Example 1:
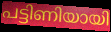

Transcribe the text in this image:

പട്ടിണിയായി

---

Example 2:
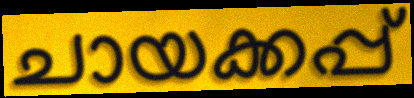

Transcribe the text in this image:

ചായക്കപ്പ്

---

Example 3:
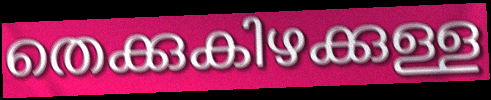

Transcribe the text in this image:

തെക്കുകിഴക്കുള്ള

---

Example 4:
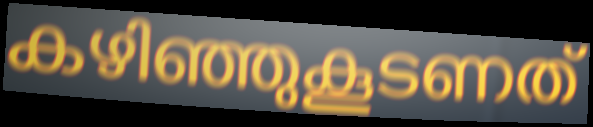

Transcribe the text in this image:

കഴിഞ്ഞുകൂടണത്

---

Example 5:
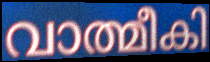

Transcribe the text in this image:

വാത്മീകി